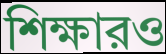
শিক্ষারও